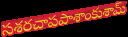
సశరచాపపాశాంకుశామ్